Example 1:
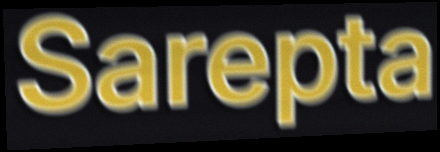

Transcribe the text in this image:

Sarepta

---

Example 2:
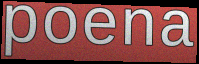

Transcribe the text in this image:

poena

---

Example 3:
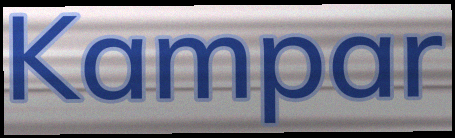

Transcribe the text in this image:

Kampar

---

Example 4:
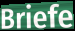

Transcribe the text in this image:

Briefe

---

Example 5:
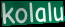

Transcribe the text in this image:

kolalu